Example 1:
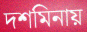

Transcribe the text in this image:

দশমিনায়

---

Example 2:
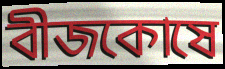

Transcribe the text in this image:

বীজকোষে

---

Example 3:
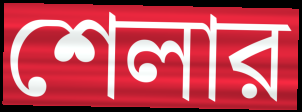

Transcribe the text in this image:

শেলার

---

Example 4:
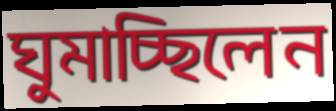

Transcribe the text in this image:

ঘুমাচ্ছিলেন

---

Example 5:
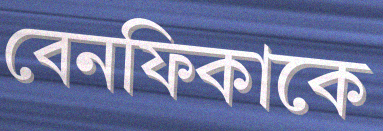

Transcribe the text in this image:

বেনফিকাকে